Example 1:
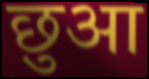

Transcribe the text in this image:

छुआ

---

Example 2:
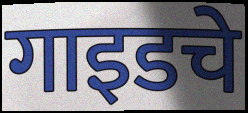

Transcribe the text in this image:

गाइडचे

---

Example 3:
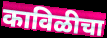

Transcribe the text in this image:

काविळीचा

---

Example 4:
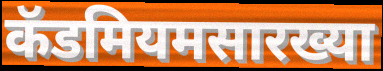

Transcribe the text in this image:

कॅडमियमसारख्या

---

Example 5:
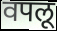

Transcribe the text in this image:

वपलू